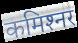
कमिश्‍नर